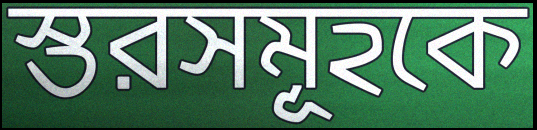
স্তরসমূহকে